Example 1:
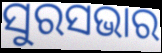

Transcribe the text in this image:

ସୁରସଭାର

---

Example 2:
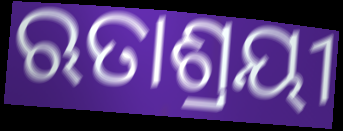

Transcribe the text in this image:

ଋତାଶ୍ରୟୀ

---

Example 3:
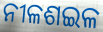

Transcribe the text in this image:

ନୀଳଶଇଳ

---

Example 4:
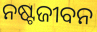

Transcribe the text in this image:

ନଷ୍ଟଜୀବନ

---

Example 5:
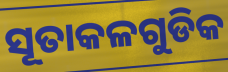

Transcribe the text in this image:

ସୂତାକଳଗୁଡିକ